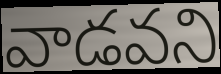
వాడవని